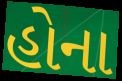
હોના